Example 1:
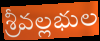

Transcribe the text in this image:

శ్రీవల్లభుల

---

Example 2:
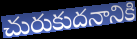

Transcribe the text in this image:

చురుకుదనానికి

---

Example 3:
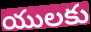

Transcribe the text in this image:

యులకు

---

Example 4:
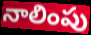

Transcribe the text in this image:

నాలింపు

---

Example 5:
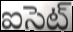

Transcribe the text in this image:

ఐసెట్